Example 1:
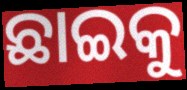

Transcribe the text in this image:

ଛାଇକୁ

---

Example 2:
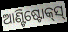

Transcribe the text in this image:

ଆଣ୍ଟିଷ୍ଟୋକ୍‍ସ୍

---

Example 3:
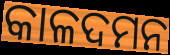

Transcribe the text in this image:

କାଳଦମନ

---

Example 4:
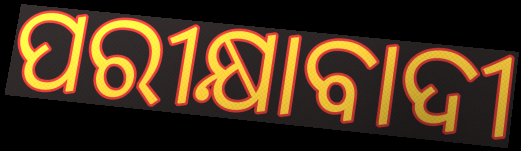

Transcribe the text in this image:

ପରୀକ୍ଷାବାଦୀ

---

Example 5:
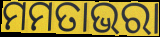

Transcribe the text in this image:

ମମତାଭରା